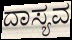
ದಾಸ್ಯವ